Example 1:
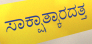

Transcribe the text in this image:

ಸಾಕ್ಷಾತ್ಕಾರದತ್ತ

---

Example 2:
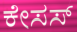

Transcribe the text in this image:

ಕೇಸಸ್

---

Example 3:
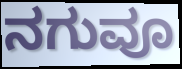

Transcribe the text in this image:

ನಗುವೂ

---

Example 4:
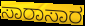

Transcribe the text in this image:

ಸಾರಾಸಾರ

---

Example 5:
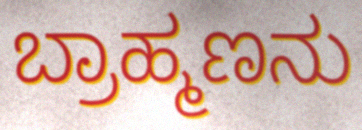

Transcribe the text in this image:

ಬ್ರಾಹ್ಮಣನು